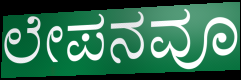
ಲೇಪನವೂ